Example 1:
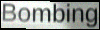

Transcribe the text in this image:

Bombing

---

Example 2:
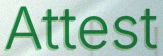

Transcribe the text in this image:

Attest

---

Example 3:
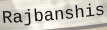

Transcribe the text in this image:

Rajbanshis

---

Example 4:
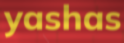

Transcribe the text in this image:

yashas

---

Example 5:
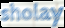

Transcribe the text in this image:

sholay